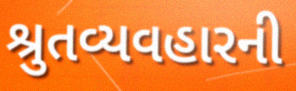
શ્રુતવ્યવહારની